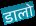
डालो